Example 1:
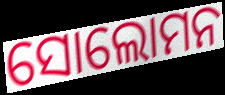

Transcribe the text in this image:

ସୋଲୋମନ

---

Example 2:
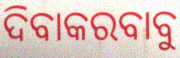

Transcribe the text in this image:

ଦିବାକରବାବୁ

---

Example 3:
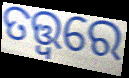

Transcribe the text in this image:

ତତ୍ତ୍ୱରେ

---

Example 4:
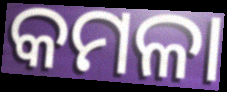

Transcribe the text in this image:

କମଳା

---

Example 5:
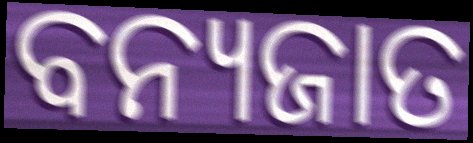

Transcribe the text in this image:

ବନ୍ୟଜାତ